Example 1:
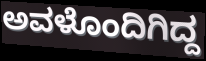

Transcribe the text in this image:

ಅವಳೊಂದಿಗಿದ್ದ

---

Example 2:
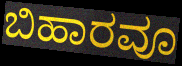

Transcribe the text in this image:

ಬಿಹಾರವೂ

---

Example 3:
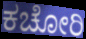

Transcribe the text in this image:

ಕಚೋರಿ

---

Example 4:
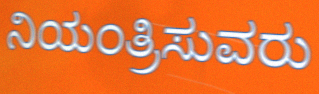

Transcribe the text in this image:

ನಿಯಂತ್ರಿಸುವರು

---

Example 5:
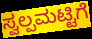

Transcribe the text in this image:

ಸ್ವಲ್ಪಮಟ್ಟಿಗೆ